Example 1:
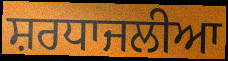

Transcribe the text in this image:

ਸ਼ਰਧਾਜਲੀਆ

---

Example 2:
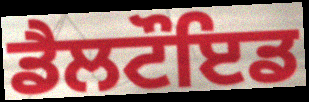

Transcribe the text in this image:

ਡੈਲਟੌਇਡ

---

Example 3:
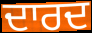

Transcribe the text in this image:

ਦਾਰਦ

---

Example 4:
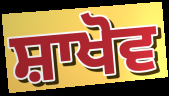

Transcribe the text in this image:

ਸ਼ਾਖੋਵ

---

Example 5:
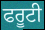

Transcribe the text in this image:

ਫਰੂਟੀ